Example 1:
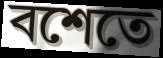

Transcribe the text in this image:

বশেতে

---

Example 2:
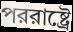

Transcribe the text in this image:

পররাষ্ট্রে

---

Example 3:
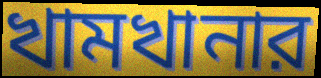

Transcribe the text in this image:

খামখানার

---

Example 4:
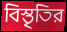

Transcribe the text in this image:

বিস্তৃতির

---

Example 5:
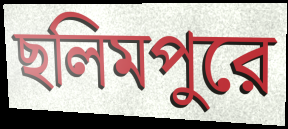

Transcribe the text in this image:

ছলিমপুরে